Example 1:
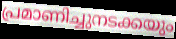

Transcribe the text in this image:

പ്രമാണിച്ചുനടക്കയും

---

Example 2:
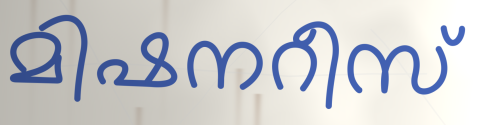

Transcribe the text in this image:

മിഷനറീസ്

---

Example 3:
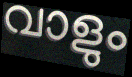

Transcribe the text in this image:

വാളും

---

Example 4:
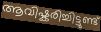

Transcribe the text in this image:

ആവിഷ്കരിച്ചിട്ടുണ്ട്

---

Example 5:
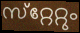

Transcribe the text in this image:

സ്‌റ്റേറ്റും